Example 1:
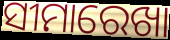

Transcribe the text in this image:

ସୀମାରେଖା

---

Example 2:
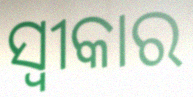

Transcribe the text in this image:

ସ୍ୱୀକାର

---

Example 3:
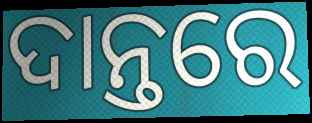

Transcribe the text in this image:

ଦାନ୍ତରେ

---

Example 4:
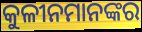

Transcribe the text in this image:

କୁଳୀନମାନଙ୍କର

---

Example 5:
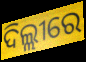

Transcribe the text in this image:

ଦିଲ୍ଲୀରେ